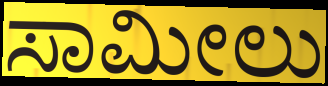
ಸಾಮೀಲು